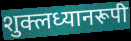
शुक्लध्यानरूपी